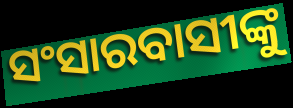
ସଂସାରବାସୀଙ୍କୁ